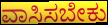
ವಾಸಿಸಬೇಕು